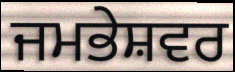
ਜਮਭੇਸ਼ਵਰ